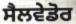
ਸੈਲਵੇਡੋਰ